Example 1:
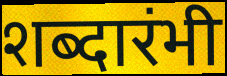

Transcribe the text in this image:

शब्दारंभी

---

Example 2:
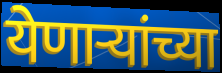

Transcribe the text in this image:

येणाऱ्यांच्या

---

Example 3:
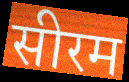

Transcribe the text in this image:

सीरम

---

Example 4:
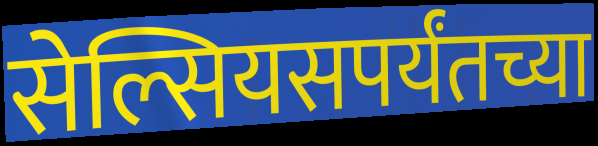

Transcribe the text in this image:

सेल्सियसपर्यंतच्या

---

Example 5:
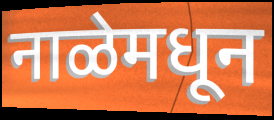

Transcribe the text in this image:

नाळेमधून